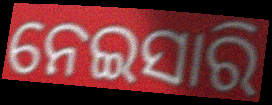
ନେଇସାରି